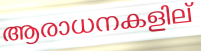
ആരാധനകളില്